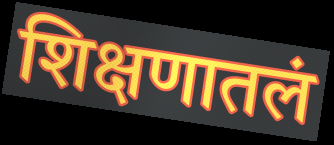
शिक्षणातलं